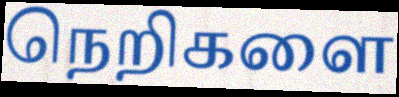
நெறிகளை